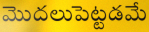
మొదలుపెట్టడమే